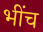
भींच